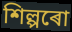
শিল্পৰো